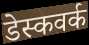
डेस्कवर्क